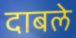
दाबले